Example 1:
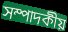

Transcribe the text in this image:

সম্পাদকীয়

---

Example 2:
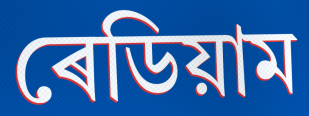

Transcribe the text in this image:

ৰেডিয়াম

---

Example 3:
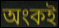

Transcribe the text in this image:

অংকই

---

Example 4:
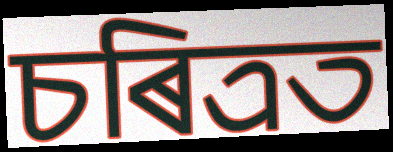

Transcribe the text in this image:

চৰিত্ৰত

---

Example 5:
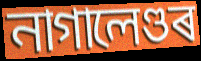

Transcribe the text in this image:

নাগালেণ্ডৰ